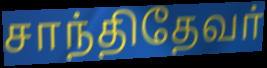
சாந்திதேவர்